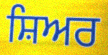
ਸ਼ਿਅਰ